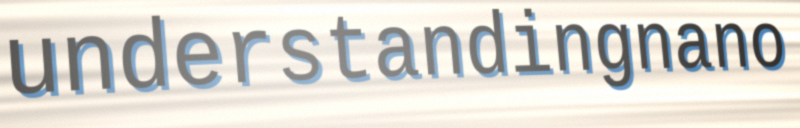
understandingnano